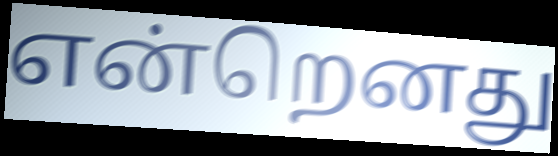
என்றெனது